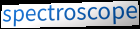
spectroscope